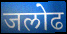
जलोढ